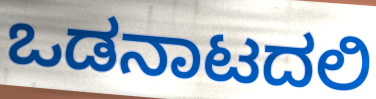
ಒಡನಾಟದಲಿ